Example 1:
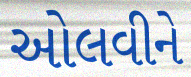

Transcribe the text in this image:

ઓલવીને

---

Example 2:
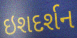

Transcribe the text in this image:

ઇશદર્શન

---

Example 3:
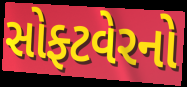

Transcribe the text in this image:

સોફ્ટવેરનો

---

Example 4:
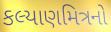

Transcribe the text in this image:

કલ્યાણમિત્રનો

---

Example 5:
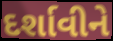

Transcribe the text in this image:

દર્શાવીને